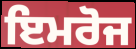
ਇਮਰੋਜ